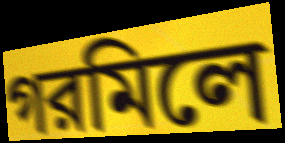
গরমিলে